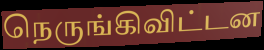
நெருங்கிவிட்டன